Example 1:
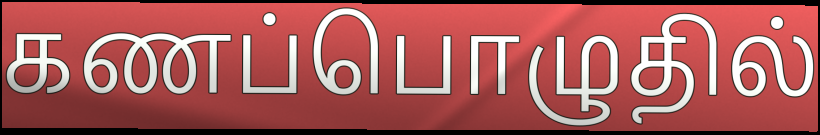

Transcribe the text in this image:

கணப்பொழுதில்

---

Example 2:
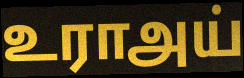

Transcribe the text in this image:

உராஅய்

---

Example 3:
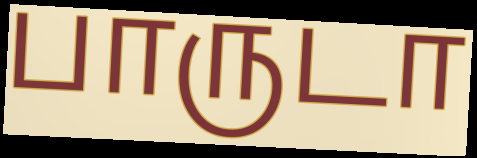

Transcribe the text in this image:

பாருடா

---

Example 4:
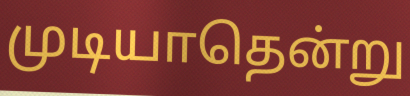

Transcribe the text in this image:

முடியாதென்று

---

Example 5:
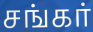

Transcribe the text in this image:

சங்கர்